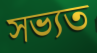
সভ্যত